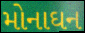
મોનાઘન